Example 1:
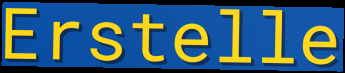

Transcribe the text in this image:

Erstelle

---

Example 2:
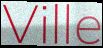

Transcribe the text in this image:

Ville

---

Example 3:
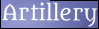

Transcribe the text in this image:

Artillery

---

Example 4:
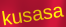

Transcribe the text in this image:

kusasa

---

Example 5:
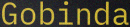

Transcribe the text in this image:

Gobinda